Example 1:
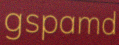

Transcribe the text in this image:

gspamd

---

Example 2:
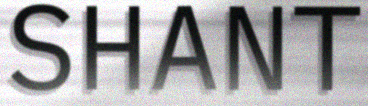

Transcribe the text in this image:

SHANT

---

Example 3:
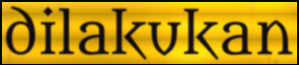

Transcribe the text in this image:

dilakukan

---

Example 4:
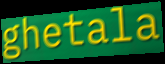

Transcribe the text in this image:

ghetala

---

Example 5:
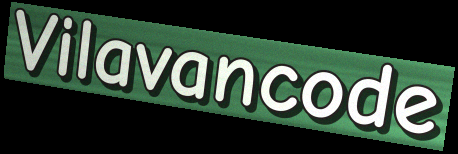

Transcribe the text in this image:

Vilavancode